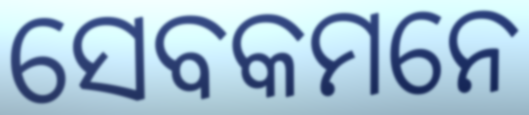
ସେବକମନେ